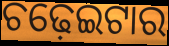
ଚଢ଼େଇଟାର